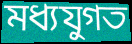
মধ্যযুগত